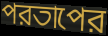
পরতাপের